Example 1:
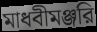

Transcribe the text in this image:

মাধবীমঞ্জরি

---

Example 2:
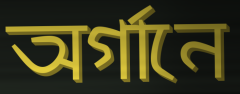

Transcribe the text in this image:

অর্গানে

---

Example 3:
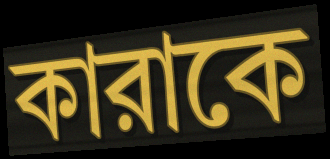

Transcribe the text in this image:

কারাকে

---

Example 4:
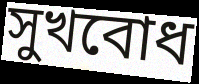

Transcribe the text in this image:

সুখবোধ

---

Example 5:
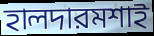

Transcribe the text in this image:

হালদারমশাই